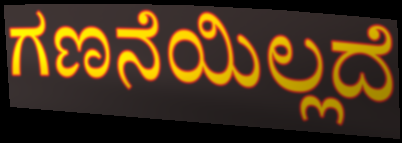
ಗಣನೆಯಿಲ್ಲದೆ